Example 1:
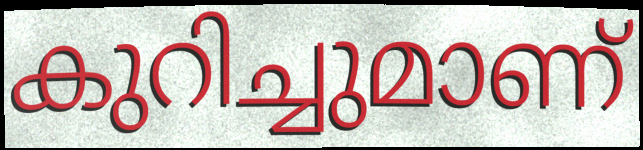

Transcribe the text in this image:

കുറിച്ചുമാണ്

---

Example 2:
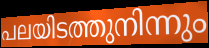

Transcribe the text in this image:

പലയിടത്തുനിന്നും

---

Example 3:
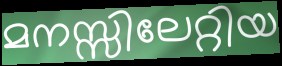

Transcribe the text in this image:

മനസ്സിലേറ്റിയ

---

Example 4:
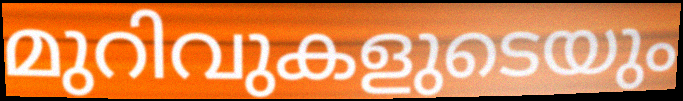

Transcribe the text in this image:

മുറിവുകളുടെയും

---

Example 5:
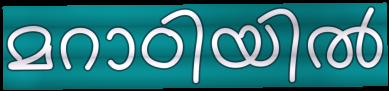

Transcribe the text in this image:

മറാഠിയിൽ